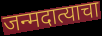
जन्मदात्याचा